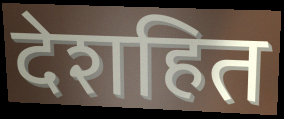
देशहित